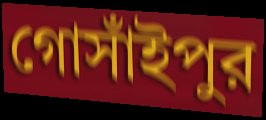
গোসাঁইপুর